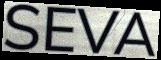
SEVA